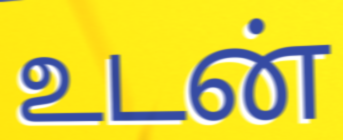
உடன்